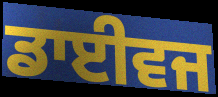
ਡਾਈਵਜ